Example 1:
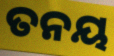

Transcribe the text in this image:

ତନୟ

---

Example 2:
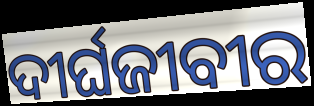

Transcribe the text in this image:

ଦୀର୍ଘଜୀବୀର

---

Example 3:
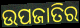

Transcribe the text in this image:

ଉପଜାତିର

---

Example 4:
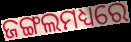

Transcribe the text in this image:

ଜଙ୍ଗଲମଧ୍ୟରେ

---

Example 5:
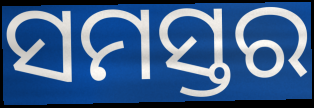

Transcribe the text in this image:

ସମସ୍ତର